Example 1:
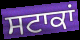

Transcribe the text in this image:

ਸਟਾਕਾਂ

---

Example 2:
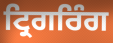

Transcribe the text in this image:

ਟ੍ਰਿਗਰਿੰਗ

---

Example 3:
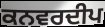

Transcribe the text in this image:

ਕਨਵਰਦੀਪ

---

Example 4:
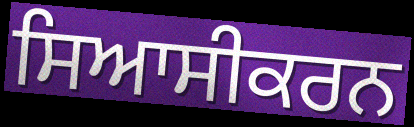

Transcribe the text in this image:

ਸਿਆਸੀਕਰਨ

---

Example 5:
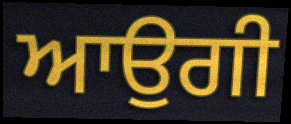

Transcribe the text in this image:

ਆਉਗੀ